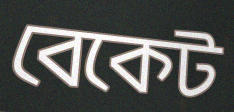
বেকেট